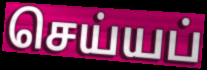
செய்யப்